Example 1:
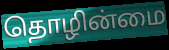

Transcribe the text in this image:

தொழின்மை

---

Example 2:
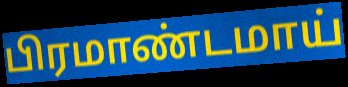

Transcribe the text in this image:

பிரமாண்டமாய்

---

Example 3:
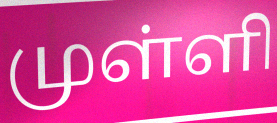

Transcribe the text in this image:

முள்ளி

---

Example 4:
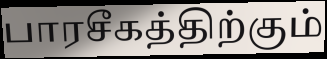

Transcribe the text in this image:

பாரசீகத்திற்கும்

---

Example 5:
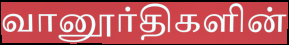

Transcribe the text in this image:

வானூர்திகளின்